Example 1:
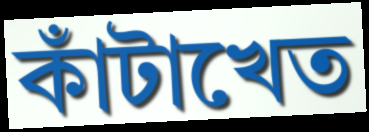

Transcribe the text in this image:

কাঁটাখেত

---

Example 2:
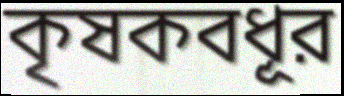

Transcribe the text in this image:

কৃষকবধূর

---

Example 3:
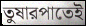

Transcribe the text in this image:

তুষারপাতেই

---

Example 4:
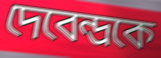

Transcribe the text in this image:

দেবেন্দ্রকে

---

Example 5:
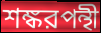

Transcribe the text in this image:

শঙ্করপন্থী